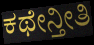
ಕಥೇನ್ತೀತಿ